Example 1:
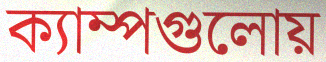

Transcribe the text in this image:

ক্যাম্পগুলোয়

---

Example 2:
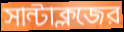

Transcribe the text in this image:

সান্টাক্লজের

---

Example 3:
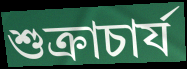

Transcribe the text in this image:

শুক্রাচার্য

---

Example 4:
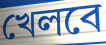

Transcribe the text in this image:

খেলবে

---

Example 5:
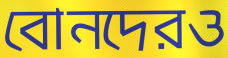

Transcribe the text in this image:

বোনদেরও